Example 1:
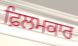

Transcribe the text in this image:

ਫ਼ਿਲਮਕਾਰ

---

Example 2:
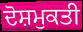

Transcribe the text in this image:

ਦੋਸ਼ਮੁਕਤੀ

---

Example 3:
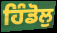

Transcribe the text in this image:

ਹਿੰਡੋਲੁ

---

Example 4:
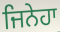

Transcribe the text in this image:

ਜਿਨੇਹਾ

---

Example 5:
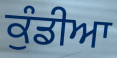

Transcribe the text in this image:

ਕੁੰਡੀਆ